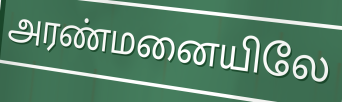
அரண்மனையிலே